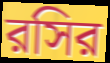
রসির